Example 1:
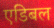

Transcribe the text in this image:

एडिबल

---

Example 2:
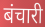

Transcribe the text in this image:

बंचारी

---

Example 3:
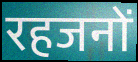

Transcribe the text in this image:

रहजनों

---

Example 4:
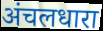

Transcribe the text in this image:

अंचलधारा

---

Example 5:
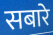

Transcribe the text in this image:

सबारे